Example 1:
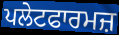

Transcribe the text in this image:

ਪਲੇਟਫਾਰਮਜ਼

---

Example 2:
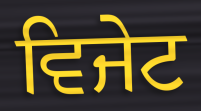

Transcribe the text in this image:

ਵਿਜੇਟ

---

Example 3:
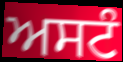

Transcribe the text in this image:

ਅਸਟੰ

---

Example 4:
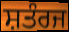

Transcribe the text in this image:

ਸ਼ਤੰਰਜ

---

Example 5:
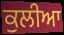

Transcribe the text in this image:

ਕੁਲੀਆ